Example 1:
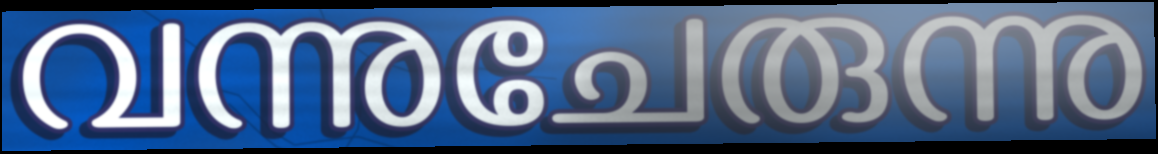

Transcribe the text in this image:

വന്നുചേരുന്നു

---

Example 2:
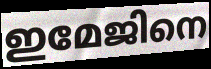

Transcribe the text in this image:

ഇമേജിനെ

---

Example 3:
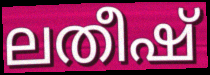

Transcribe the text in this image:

ലതീഷ്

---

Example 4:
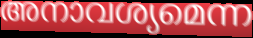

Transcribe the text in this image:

അനാവശ്യമെന്ന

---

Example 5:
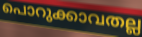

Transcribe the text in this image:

പൊറുക്കാവതല്ല